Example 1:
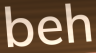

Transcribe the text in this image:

beh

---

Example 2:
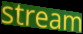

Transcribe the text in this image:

stream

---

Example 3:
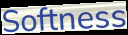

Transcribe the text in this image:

Softness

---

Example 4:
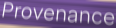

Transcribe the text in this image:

Provenance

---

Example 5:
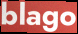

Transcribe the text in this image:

blago